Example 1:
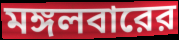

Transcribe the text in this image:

মঙ্গলবারের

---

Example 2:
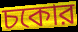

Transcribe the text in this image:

চকোর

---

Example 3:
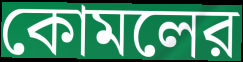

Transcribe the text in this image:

কোমলের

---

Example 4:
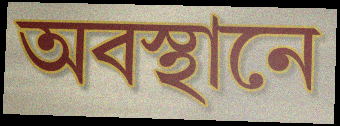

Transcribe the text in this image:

অবস্থানে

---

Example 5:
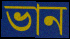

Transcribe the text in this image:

ভান